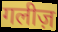
गलीज़